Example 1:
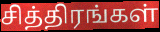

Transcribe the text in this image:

சித்திரங்கள்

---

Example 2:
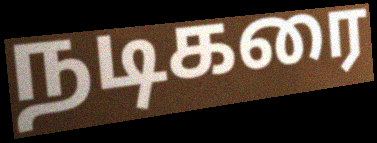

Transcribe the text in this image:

நடிகரை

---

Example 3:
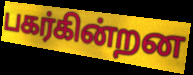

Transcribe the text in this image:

பகர்கின்றன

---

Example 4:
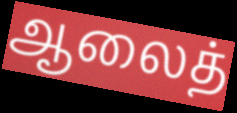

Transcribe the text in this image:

ஆலைத்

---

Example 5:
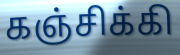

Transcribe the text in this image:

கஞ்சிக்கி